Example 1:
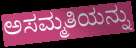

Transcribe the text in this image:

ಅಸಮ್ಮತಿಯನ್ನು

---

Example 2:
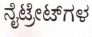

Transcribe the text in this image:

ನೈಟ್ರೇಟ್‌ಗಳ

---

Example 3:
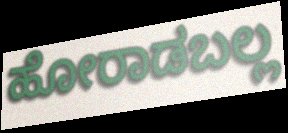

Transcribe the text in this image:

ಹೋರಾಡಬಲ್ಲ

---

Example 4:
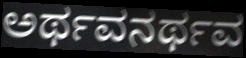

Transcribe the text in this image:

ಅರ್ಥವನರ್ಥವ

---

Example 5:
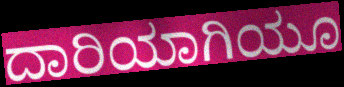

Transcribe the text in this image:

ದಾರಿಯಾಗಿಯೂ